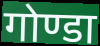
गोण्डा